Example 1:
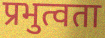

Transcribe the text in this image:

प्रभुत्वता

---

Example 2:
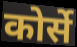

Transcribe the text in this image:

कोर्से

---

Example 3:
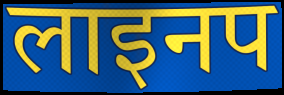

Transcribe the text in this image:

लाइनप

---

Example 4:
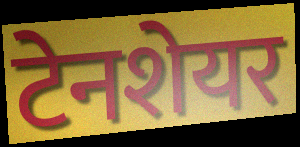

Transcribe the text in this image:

टेनशेयर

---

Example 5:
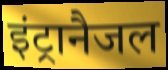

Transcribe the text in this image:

इंट्रानैजल